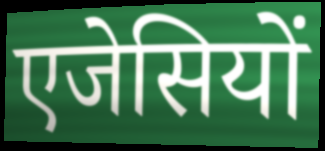
एजेसियों